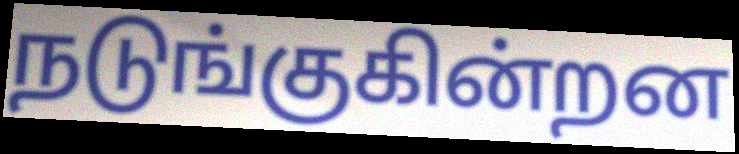
நடுங்குகின்றன